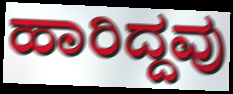
ಹಾರಿದ್ದವು